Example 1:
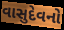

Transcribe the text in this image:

વાસુદેવનો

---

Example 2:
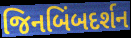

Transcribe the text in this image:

જિનબિંબદર્શન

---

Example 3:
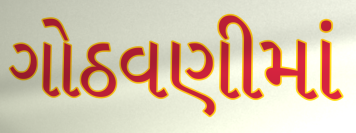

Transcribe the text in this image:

ગોઠવણીમાં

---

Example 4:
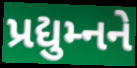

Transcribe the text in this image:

પ્રદ્યુમ્નને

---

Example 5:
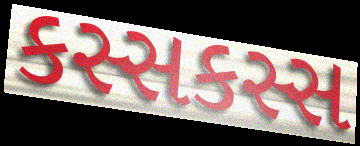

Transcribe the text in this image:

કસ્સકસ્સ